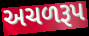
અચળરૂપ